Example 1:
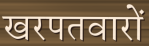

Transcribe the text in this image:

खरपतवारों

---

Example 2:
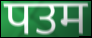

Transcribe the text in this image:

पउम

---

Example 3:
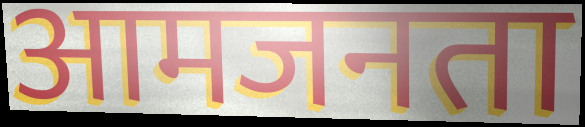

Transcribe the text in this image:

आमजनता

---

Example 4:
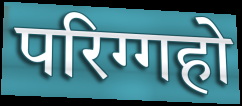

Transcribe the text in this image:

परिग्गहो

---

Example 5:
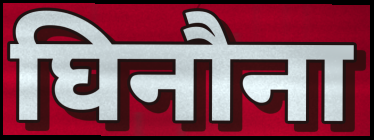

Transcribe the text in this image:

घिनौना